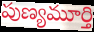
పుణ్యమూర్తి